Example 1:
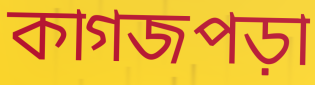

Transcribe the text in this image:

কাগজপড়া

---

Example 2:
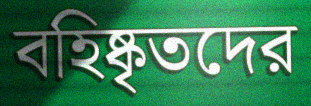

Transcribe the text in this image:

বহিষ্কৃতদের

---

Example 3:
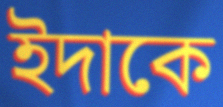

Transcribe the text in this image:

ইদাকে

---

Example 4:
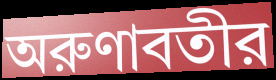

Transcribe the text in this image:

অরুণাবতীর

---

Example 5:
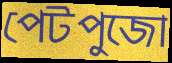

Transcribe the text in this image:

পেটপুজো